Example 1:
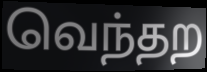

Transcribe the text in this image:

வெந்தற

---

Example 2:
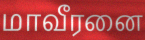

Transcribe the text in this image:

மாவீரனை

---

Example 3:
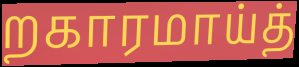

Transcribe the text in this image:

றகாரமாய்த்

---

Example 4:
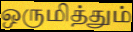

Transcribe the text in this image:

ஒருமித்தும்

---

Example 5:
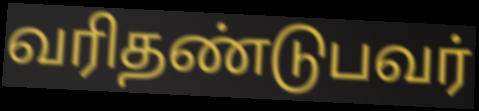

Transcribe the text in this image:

வரிதண்டுபவர்